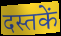
दस्तकें